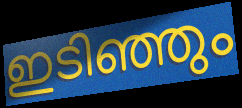
ഇടിഞ്ഞും